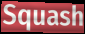
Squash